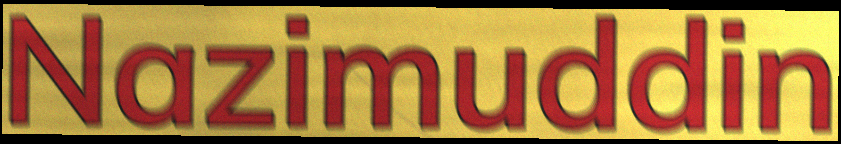
Nazimuddin